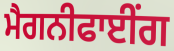
ਮੈਗਨੀਫਾਈਂਗ